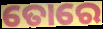
ତୋରେ